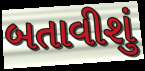
બતાવીશું